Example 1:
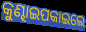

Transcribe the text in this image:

କୁଣ୍ଢାଇପକାଇଲେ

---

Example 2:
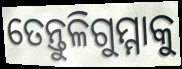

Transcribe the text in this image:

ତେନ୍ତୁଳିଗୁମ୍ମାକୁ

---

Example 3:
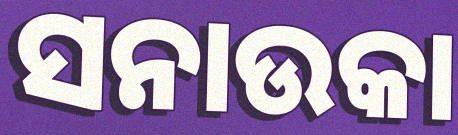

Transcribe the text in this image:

ସନାଉକା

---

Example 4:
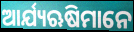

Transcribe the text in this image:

ଆର୍ଯ୍ୟଋଷିମାନେ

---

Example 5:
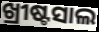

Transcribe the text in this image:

ଖ୍ରୀଷ୍ଟସାଲ